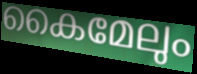
കൈമേലും